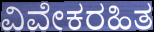
ವಿವೇಕರಹಿತ